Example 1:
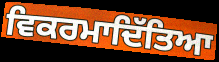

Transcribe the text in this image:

ਵਿਕਰਮਾਦਿੱਤਿਆ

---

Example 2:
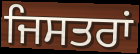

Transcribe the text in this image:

ਜਿਸਤਰਾਂ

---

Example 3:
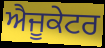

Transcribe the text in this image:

ਐਜੂਕੇਟਰ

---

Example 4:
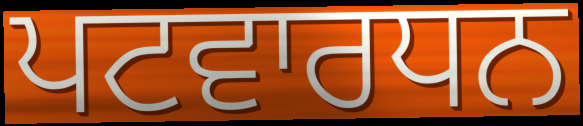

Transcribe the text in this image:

ਪਟਵਾਰਧਨ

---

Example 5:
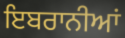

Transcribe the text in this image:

ਇਬਰਾਨੀਆਂ